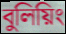
বুলিয়িং